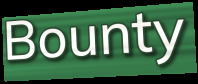
Bounty